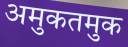
अमुकतमुक